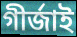
গীৰ্জাই